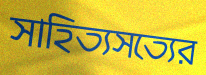
সাহিত্যসত্যের